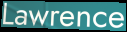
Lawrence